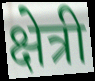
क्षेत्री